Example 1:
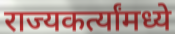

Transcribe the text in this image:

राज्यकर्त्यांमध्ये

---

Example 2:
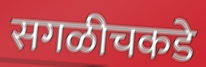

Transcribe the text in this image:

सगळीचकडे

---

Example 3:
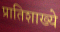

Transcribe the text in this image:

प्रातिशाख्ये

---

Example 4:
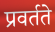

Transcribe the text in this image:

प्रवर्तते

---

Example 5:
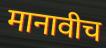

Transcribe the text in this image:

मानावीच